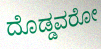
ದೊಡ್ಡವರೋ